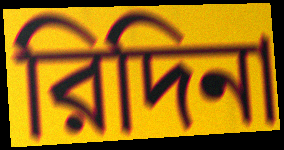
রিদিনা